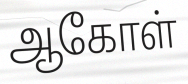
ஆகோள்